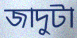
জাদুটা